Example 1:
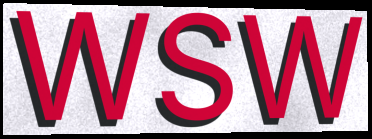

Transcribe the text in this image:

WSW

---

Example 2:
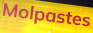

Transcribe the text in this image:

Molpastes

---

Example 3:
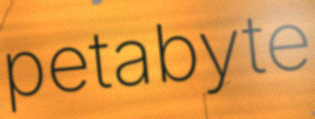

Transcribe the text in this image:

petabyte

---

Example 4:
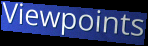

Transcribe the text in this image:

Viewpoints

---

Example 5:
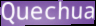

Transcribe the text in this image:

Quechua